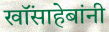
खॉंसाहेबांनी